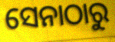
ସେନାଠାରୁ